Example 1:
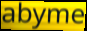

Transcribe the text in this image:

abyme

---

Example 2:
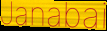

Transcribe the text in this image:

Janabai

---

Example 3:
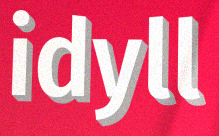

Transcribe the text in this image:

idyll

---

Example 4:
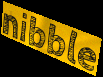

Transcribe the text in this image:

nibble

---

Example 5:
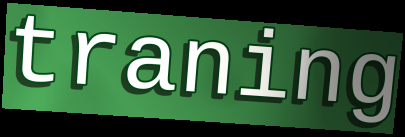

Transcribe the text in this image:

traning